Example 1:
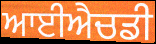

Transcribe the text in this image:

ਆਈਐਚਡੀ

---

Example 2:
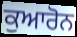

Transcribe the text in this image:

ਕੁਆਰੋਨ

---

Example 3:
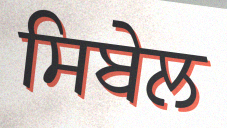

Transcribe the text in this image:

ਸਿਬੇਲ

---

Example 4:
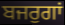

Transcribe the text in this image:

ਬਜਰੁਗਾਂ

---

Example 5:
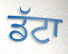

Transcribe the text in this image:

ਡੱਟਾ